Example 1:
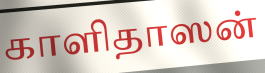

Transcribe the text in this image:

காளிதாஸன்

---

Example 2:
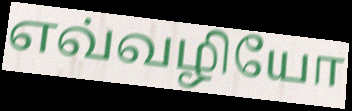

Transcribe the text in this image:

எவ்வழியோ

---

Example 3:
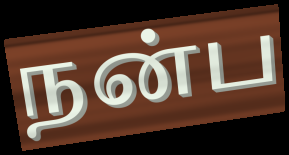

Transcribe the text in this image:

நன்ப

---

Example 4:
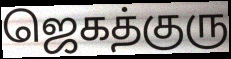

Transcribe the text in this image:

ஜெகத்குரு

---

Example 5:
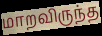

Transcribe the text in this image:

மாறவிருந்த